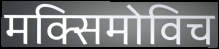
मक्सिमोविच